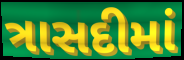
ત્રાસદીમાં